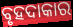
ବୃହଦାକାର